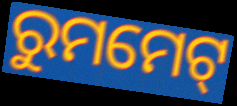
ରୁମମେଟ୍